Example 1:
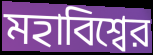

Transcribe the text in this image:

মহাবিশ্বের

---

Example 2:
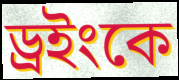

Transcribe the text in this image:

ড্রইংকে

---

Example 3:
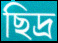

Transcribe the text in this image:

ছিদ্র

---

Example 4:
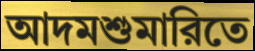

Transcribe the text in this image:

আদমশুমারিতে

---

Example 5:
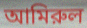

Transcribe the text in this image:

আমিরুল